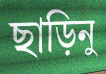
ছাড়িনু